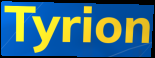
Tyrion